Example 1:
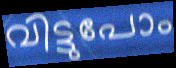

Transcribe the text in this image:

വിട്ടുപോം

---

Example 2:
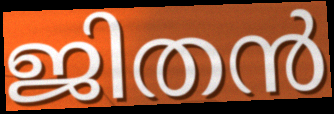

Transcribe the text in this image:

ജിതൻ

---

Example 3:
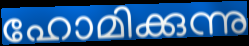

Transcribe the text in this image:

ഹോമിക്കുന്നു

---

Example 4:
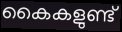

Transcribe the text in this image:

കൈകളുണ്ട്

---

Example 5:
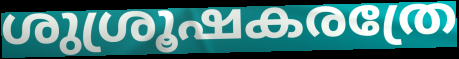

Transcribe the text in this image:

ശുശ്രൂഷകരത്രേ